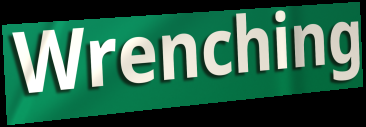
Wrenching